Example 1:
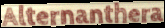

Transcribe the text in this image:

Alternanthera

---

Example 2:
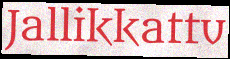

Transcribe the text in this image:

Jallikkattu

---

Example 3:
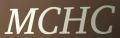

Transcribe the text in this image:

MCHC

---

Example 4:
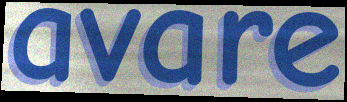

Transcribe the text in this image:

avare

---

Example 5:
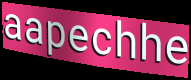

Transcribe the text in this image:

aapechhe